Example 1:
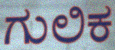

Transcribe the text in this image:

ಗುಲಿಕ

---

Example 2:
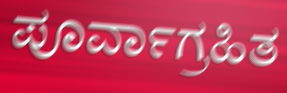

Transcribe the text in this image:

ಪೂರ್ವಾಗ್ರಹಿತ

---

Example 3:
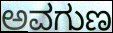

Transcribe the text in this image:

ಅವಗುಣ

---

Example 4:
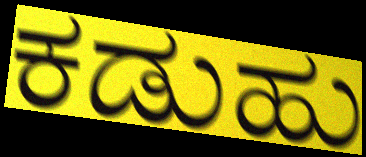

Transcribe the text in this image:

ಕಡುಹು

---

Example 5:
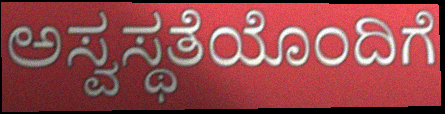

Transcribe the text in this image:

ಅಸ್ವಸ್ಥತೆಯೊಂದಿಗೆ